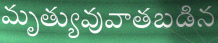
మృత్యువువాతబడిన